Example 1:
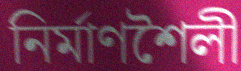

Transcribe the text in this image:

নিৰ্মাণশৈলী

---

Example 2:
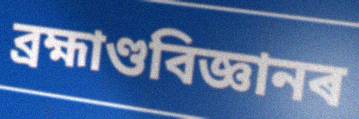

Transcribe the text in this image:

ব্ৰহ্মাণ্ডবিজ্ঞানৰ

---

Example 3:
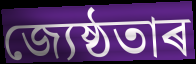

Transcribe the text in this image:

জ্যেষ্ঠতাৰ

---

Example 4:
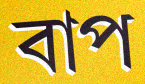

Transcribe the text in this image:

বাপ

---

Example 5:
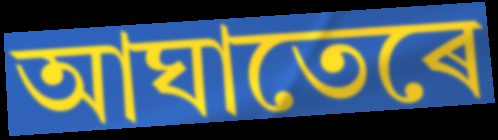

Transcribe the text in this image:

আঘাতেৰে